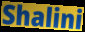
Shalini